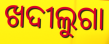
ଖଦୀଲୁଗା